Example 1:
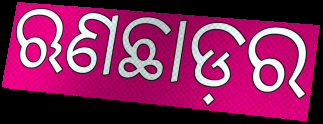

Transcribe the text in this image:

ଋଣଛାଡ଼ର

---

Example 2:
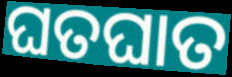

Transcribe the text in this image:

ଘତଘାତ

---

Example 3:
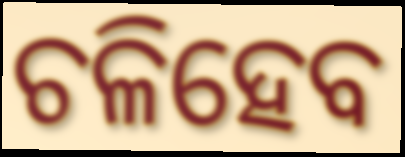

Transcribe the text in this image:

ଚଳିହେବ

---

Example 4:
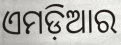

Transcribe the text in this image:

ଏମଡ଼ିଆର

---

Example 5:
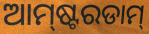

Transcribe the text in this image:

ଆମ୍‍ଷ୍ଟରଡାମ୍